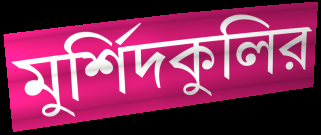
মুর্শিদকুলির